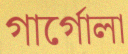
গাৰ্গোলা